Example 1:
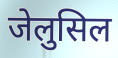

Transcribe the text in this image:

जेलुसिल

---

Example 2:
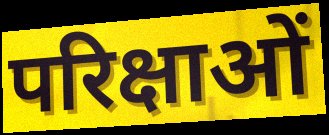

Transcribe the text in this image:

परिक्षाओं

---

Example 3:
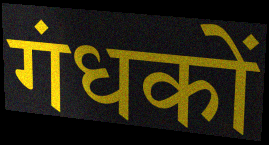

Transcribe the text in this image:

गंधकों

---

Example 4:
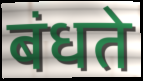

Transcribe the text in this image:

बंधते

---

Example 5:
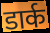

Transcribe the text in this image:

डार्क